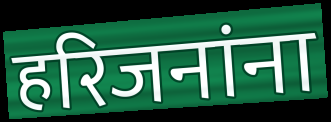
हरिजनांना